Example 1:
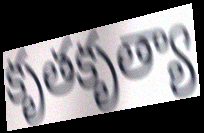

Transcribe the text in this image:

కృతకృత్యా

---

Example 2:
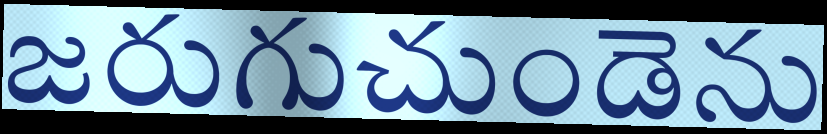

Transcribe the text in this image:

జరుగుచుండెను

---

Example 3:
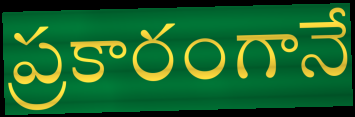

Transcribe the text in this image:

ప్రకారంగానే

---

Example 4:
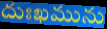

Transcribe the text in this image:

దుఃఖమును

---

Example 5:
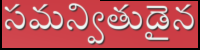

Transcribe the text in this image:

సమన్వితుడైన